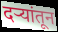
दऱ्यांतून